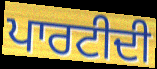
ਪਾਰਟੀਦੀ